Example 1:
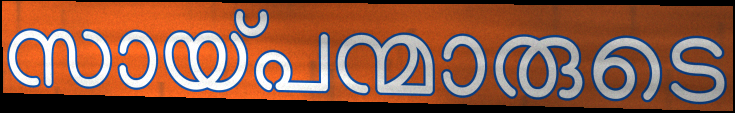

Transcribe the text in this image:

സായ്പന്മാരുടെ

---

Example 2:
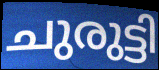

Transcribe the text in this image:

ചുരുട്ടി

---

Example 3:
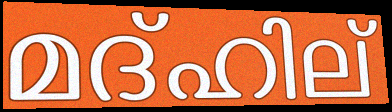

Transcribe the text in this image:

മദ്ഹില്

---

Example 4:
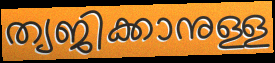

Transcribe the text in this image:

ത്യജിക്കാനുള്ള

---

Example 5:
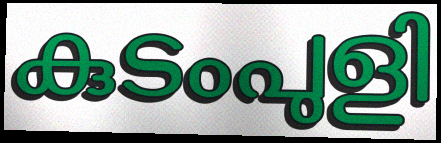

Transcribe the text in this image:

കുടംപുളി